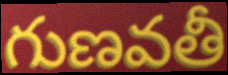
గుణవతీ